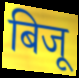
बिजू